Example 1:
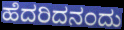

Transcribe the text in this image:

ಹೆದರಿದನಂದು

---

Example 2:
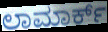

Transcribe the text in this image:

ಲಾಮಾರ್ಕ್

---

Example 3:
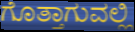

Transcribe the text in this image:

ಗೊತ್ತಾಗುವಲ್ಲಿ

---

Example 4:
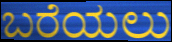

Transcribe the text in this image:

ಬರೆಯಲು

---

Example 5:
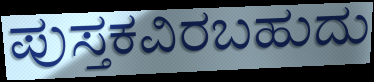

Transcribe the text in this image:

ಪುಸ್ತಕವಿರಬಹುದು